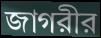
জাগরীর